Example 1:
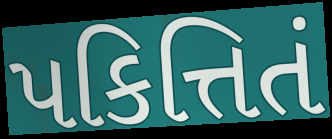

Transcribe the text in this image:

પકિત્તિતં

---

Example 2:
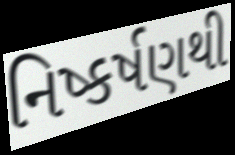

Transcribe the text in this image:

નિષ્કર્ષણથી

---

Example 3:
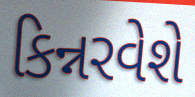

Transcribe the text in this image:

કિન્નરવેશે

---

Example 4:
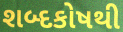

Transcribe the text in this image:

શબ્દકોષથી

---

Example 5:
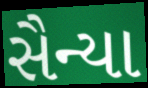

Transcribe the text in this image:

સૈન્યા